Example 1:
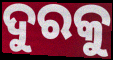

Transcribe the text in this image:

ଦୁରକୁ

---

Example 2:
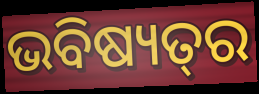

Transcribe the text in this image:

ଭବିଷ୍ୟତ୍‌ର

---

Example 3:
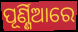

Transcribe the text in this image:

ପୂର୍ଣ୍ଣିଆରେ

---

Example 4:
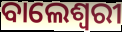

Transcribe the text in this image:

ବାଲେଶ୍ଵରୀ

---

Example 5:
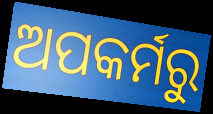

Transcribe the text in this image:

ଅପକର୍ମରୁ